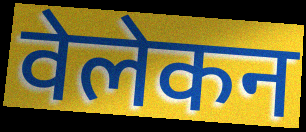
वेलेकन